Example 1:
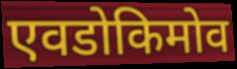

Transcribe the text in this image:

एवडोकिमोव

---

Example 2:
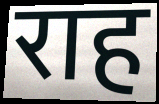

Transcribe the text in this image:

राह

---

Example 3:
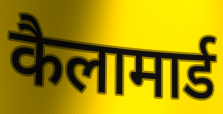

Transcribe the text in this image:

कैलामार्ड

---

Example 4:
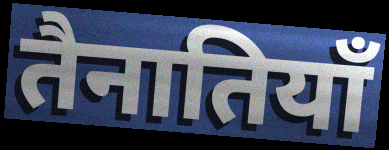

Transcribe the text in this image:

तैनातियाँ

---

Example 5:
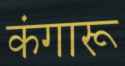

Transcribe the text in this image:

कंगारू